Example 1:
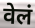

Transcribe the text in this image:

वेलं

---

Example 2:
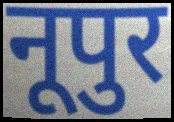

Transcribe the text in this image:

नूपुर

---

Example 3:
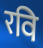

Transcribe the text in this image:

रवि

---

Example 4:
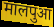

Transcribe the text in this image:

मालपुआ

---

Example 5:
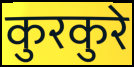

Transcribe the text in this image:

कुरकुरे